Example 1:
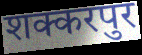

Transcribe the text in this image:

शक्करपुर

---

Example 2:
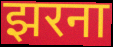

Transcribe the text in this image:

झरना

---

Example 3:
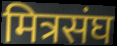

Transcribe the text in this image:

मित्रसंघ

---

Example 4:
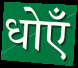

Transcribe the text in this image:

धोएँ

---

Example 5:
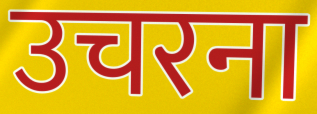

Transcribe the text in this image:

उचरना